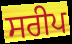
ਸਰੀਪ